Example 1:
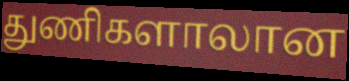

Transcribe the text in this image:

துணிகளாலான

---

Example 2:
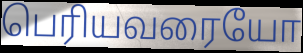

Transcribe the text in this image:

பெரியவரையோ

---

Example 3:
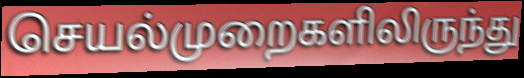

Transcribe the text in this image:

செயல்முறைகளிலிருந்து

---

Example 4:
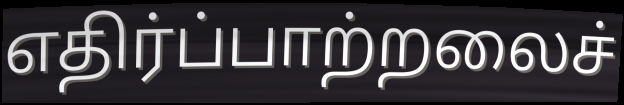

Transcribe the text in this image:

எதிர்ப்பாற்றலைச்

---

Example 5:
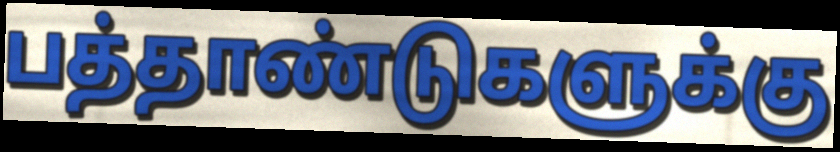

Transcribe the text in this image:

பத்தாண்டுகளுக்கு